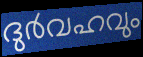
ദുർവഹവും